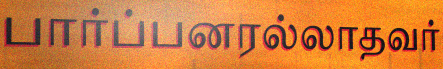
பார்ப்பனரல்லாதவர்